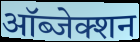
ऑब्‍जेक्‍शन